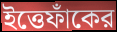
ইত্তেফাঁকের